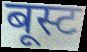
बूस्ट